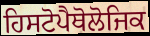
ਹਿਸਟੋਪੈਥੋਲੋਜਿਕ